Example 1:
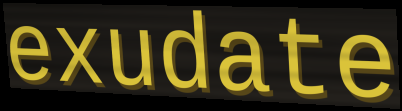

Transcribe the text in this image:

exudate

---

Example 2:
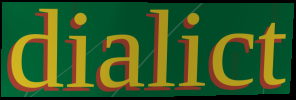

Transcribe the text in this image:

dialict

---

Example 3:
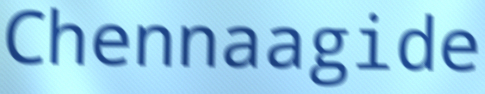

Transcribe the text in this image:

Chennaagide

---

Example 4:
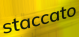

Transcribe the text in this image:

staccato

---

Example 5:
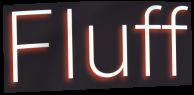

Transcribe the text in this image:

Fluff